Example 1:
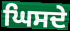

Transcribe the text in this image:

ਘਿਸਦੇ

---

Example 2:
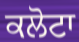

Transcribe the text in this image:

ਕਲੋਟਾ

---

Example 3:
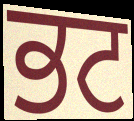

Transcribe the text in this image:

ਭਟ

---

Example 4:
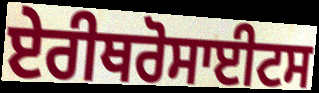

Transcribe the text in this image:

ਏਰੀਥਰੋਸਾਈਟਸ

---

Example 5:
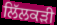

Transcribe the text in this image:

ਲਿੱਲਕੜੀ